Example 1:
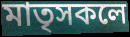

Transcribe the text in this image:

মাতৃসকলে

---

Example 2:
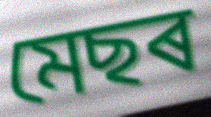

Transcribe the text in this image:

মেছৰ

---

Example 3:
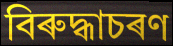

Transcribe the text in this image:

বিৰুদ্ধাচৰণ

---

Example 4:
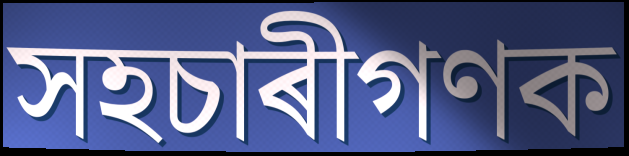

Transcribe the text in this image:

সহচাৰীগণক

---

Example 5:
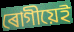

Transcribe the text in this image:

ৰোগীয়েই